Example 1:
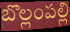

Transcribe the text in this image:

బొల్లంపల్లి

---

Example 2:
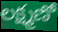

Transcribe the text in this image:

లక్ష్మణో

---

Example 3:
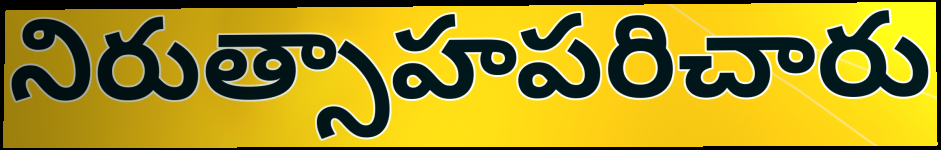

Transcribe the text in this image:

నిరుత్సాహపరిచారు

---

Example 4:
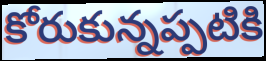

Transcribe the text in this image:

కోరుకున్నప్పటికి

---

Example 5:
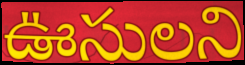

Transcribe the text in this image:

ఊసులని